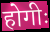
होगीः